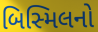
બિસ્મિલનો